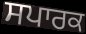
ਸਪਾਰਕ